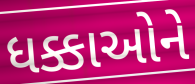
ધક્કાઓને